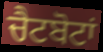
ਚੈਟਬੋਟਾਂ